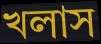
খলাস